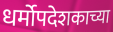
धर्मोपदेशकाच्या